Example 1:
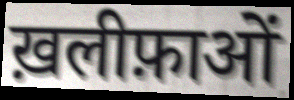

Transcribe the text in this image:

ख़लीफ़ाओं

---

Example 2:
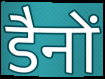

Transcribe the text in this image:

डैनों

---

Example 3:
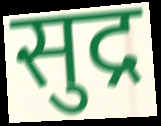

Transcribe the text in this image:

सुद्र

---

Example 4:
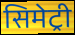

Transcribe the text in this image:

सिमेट्री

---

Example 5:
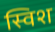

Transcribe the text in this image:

स्विश